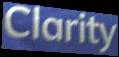
Clarity